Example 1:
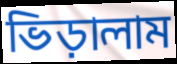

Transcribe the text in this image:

ভিড়ালাম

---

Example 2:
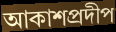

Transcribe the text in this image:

আকাশপ্রদীপ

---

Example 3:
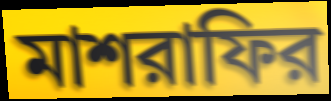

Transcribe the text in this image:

মাশরাফির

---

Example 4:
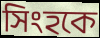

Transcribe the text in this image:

সিংহকে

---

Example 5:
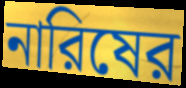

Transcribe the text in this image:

নারিষের